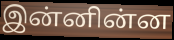
இன்னின்ன